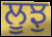
ਲੂਝੁ